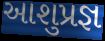
આશુપ્રજ્ઞ